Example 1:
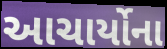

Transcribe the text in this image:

આચાર્યોના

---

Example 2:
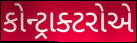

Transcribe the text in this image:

કોન્ટ્રાક્ટરોએ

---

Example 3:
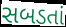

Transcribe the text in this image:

સબડતાં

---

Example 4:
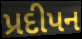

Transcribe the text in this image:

પ્રદીપન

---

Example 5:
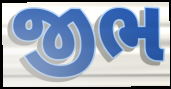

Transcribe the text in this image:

જીભ